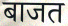
बाजत